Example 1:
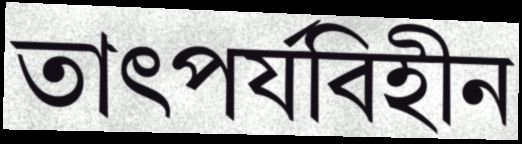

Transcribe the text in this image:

তাৎপর্যবিহীন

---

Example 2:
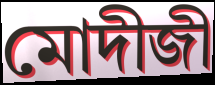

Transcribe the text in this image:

মোদীজী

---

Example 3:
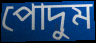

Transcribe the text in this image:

পোদুম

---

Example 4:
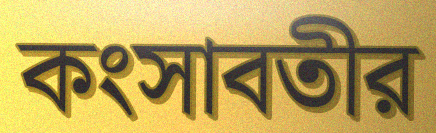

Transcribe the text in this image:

কংসাবতীর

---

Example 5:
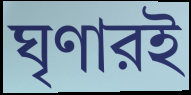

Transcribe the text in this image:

ঘৃণারই